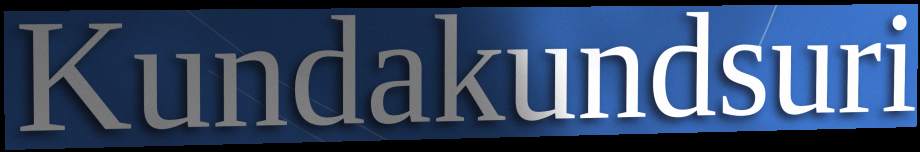
Kundakundsuri